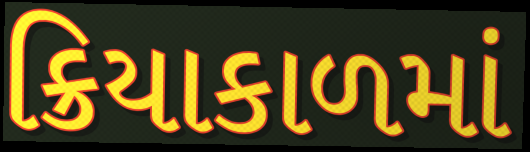
ક્રિયાકાળમાં